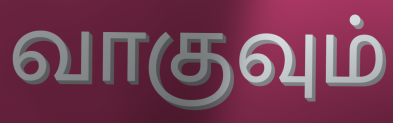
வாகுவும்